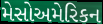
મેસોઅમેરિકન